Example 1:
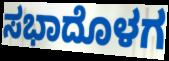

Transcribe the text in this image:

ಸಭಾದೊಳಗ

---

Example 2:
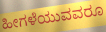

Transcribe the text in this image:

ಹೀಗಳೆಯುವವರೂ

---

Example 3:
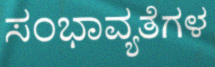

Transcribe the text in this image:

ಸಂಭಾವ್ಯತೆಗಳ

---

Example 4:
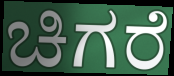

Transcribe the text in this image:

ಚಿಗರೆ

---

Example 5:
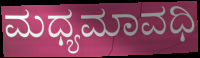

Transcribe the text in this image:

ಮಧ್ಯಮಾವಧಿ